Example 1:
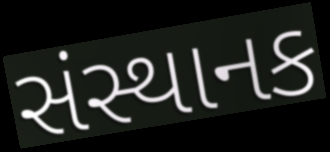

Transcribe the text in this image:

સંસ્થાનક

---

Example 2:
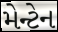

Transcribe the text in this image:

મેન્ટેન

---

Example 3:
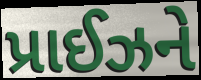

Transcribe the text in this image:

પ્રાઈઝને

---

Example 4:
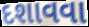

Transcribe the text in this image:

દશાવવા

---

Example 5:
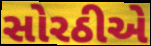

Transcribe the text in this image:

સોરઠીએ